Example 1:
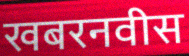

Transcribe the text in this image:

खबरनवीस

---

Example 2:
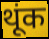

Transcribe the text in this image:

थूंक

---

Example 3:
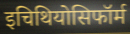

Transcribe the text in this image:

इचिथियोसिफॉर्म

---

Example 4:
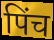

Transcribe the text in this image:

पिंच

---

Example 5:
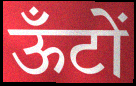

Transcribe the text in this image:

ऊँटों